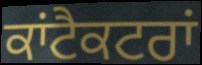
ਕਾਂਟੈਕਟਰਾਂ